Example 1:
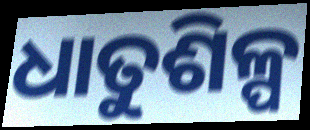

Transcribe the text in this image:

ଧାତୁଶିଳ୍ପ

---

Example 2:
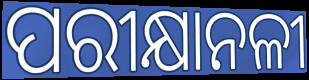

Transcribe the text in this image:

ପରୀକ୍ଷାନଳୀ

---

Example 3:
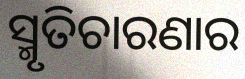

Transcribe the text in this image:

ସ୍ମୃତିଚାରଣାର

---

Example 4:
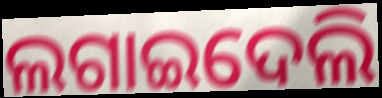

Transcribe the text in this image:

ଲଗାଇଦେଲି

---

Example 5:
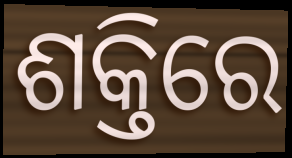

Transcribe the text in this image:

ଶକ୍ତିରେ